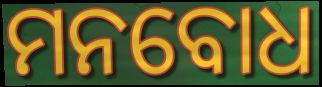
ମନବୋଧ